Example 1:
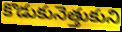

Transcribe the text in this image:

కొడుకునెత్తుకుని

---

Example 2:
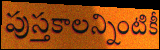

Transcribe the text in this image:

పుస్తకాలన్నింటికీ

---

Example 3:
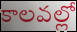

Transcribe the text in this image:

కాలవల్లో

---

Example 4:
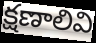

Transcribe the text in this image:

క్షణాలివి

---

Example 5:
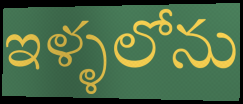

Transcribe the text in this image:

ఇళ్ళలోను